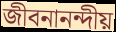
জীবনানন্দীয়